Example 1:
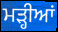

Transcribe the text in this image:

ਮੜ੍ਹੀਆਂ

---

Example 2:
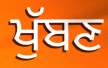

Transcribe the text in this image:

ਖੁੱਬਣ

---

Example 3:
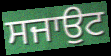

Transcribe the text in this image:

ਸਜਾਉਟ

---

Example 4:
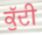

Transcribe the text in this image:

ਕੁੱਦੀ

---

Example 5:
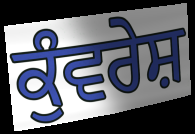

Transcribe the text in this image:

ਕੁੰਵਰੇਸ਼